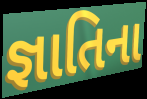
જ્ઞાતિના